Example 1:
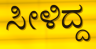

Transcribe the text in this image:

ಸೀಳಿದ್ದ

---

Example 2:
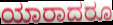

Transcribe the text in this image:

ಯಾರಾದರೂ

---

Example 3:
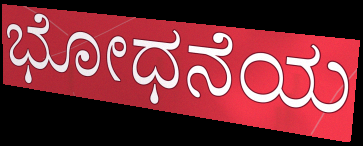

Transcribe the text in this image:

ಭೋಧನೆಯ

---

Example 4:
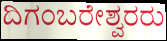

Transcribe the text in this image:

ದಿಗಂಬರೇಶ್ವರರು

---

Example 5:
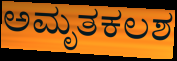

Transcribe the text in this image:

ಅಮೃತಕಲಶ